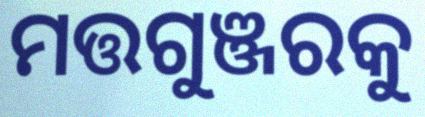
ମତ୍ତଗୁଞ୍ଜରକୁ